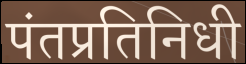
पंतप्रतिनिधी